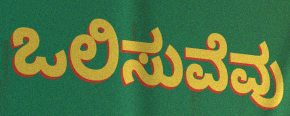
ಒಲಿಸುವೆವು